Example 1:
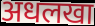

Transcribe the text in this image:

अधलखा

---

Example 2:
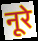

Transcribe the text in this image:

नूरे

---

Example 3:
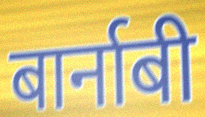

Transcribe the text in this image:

बार्नाबी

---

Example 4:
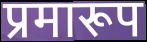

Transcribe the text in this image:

प्रमारूप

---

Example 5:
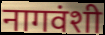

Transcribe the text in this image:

नागवंशी